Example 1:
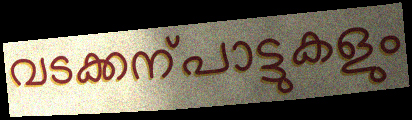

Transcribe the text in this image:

വടക്കന്പാട്ടുകളും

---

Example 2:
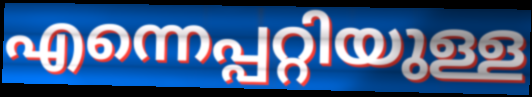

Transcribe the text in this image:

എന്നെപ്പറ്റിയുള്ള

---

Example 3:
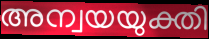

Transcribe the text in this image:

അന്വയയുക്തി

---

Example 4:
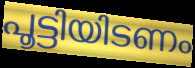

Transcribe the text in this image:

പൂട്ടിയിടണം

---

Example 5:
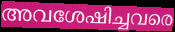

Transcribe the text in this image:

അവശേഷിച്ചവരെ